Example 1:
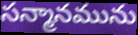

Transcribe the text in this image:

సన్మానమును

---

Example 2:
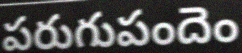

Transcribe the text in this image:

పరుగుపందెం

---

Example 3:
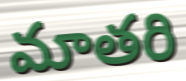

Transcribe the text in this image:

మాతరి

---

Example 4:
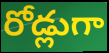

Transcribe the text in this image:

రోడ్లుగా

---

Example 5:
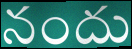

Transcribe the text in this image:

నందు